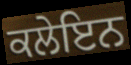
ਕਲੇਇਨ